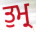
ਤੁਮ੍ਰ